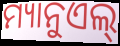
ମ୍ୟାନୁଏଲ୍